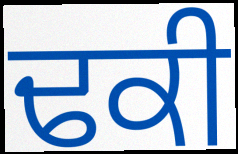
ਢਕੀ